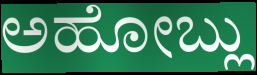
ಅಹೋಬ್ಲು